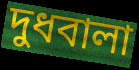
দুধবালা